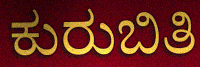
ಕುರುಬಿತಿ